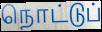
நொட்டுப்